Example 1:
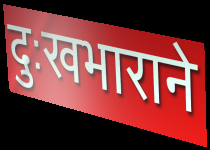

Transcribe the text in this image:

दुःखभाराने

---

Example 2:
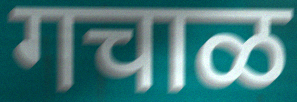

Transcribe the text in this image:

गचाळ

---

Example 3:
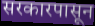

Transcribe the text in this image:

सरकारपासून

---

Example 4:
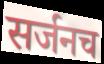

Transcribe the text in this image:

सर्जनच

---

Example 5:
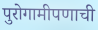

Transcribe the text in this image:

पुरोगामीपणाची